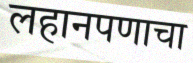
लहानपणाचा